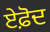
ਏਫ਼ੋਦ